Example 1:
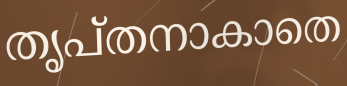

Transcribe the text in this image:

തൃപ്തനാകാതെ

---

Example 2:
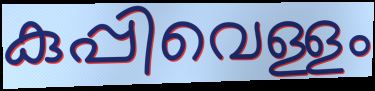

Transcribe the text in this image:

കുപ്പിവെള്ളം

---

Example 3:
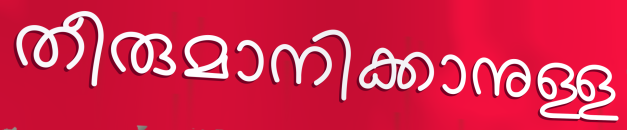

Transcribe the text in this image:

തീരുമാനിക്കാനുള്ള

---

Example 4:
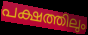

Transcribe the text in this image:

പക്ഷത്തിലും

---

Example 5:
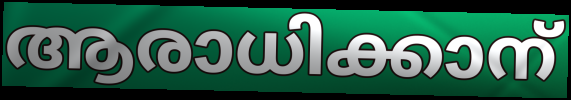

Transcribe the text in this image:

ആരാധിക്കാന്